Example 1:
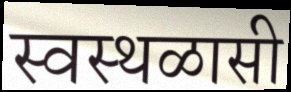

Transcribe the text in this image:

स्वस्थळासी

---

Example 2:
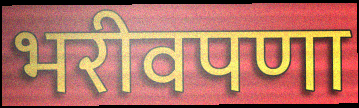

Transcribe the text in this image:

भरीवपणा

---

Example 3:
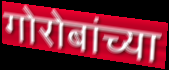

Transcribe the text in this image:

गोरोबांच्या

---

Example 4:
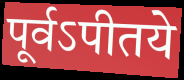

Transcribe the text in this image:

पूर्वऽपीतये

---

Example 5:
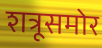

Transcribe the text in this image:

शत्रूसमोर